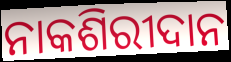
ନାକଶିରୀଦାନ